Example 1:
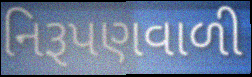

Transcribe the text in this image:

નિરૂપણવાળી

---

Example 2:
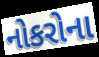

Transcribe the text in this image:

નોકરોના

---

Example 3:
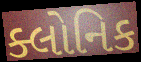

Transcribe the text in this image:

ક્લોનિક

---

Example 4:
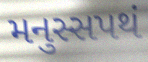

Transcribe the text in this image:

મનુસ્સપથં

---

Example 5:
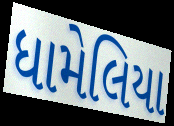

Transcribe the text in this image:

ધામેલિયા